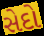
સેદો